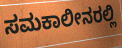
ಸಮಕಾಲೀನರಲ್ಲಿ